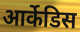
आर्केडिस